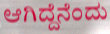
ಆಗಿದ್ದೆನೆಂದು